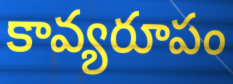
కావ్యరూపం